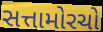
સત્તામોરચો